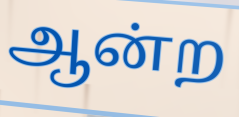
ஆன்ற